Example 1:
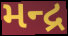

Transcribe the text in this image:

મન્દ્ર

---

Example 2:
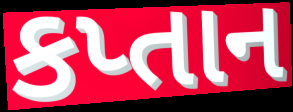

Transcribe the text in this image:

કપ્તાન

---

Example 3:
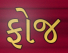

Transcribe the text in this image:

ફોજ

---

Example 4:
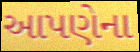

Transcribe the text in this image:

આપણેના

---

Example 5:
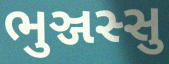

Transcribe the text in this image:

ભુઞ્જસ્સુ